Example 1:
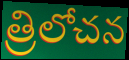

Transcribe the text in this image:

త్రిలోచన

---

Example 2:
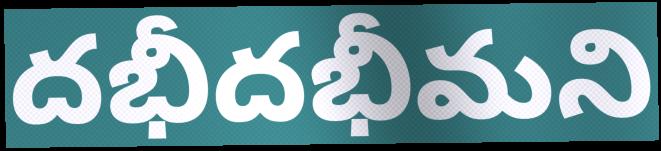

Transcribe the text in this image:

దభీదభీమని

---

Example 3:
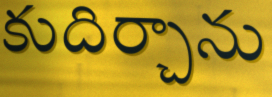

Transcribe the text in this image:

కుదిర్చాను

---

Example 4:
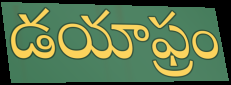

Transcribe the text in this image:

డయాఫ్రం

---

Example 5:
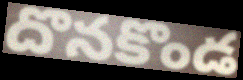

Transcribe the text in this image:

దొనకొండ